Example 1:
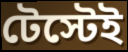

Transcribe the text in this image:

টেস্টেই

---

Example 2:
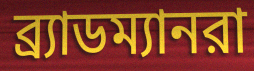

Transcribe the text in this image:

ব্র্যাডম্যানরা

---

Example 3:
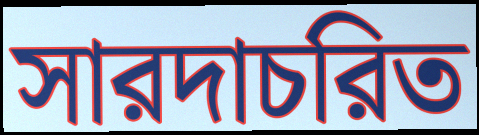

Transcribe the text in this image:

সারদাচরিত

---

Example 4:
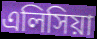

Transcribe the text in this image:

এলিসিয়া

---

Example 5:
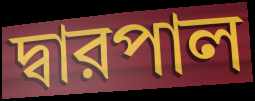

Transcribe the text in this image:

দ্বারপাল